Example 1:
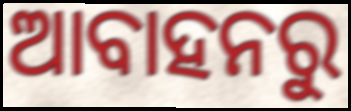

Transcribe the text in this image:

ଆବାହନରୁ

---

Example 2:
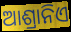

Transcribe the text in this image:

ଆଶ୍ରାନିଏ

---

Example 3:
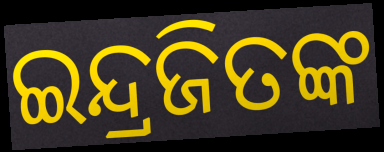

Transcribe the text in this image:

ଇନ୍ଦ୍ରଜିତଙ୍କ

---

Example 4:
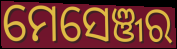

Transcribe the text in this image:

ମେସେଞ୍ଜର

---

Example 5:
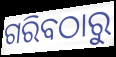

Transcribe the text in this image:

ଗରିବଠାରୁ